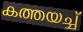
കത്തയച്ച്